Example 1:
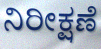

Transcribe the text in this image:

ನಿರೀಕ್ಷಣೆ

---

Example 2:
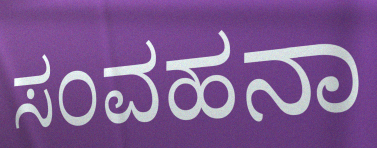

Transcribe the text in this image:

ಸಂವಹನಾ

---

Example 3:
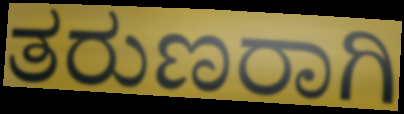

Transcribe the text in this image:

ತರುಣರಾಗಿ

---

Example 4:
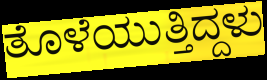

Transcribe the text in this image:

ತೊಳೆಯುತ್ತಿದ್ದಳು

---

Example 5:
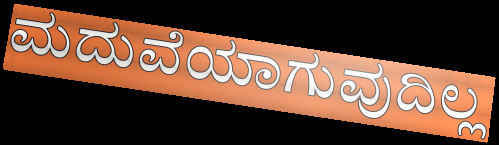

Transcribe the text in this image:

ಮದುವೆಯಾಗುವುದಿಲ್ಲ